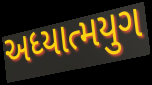
અધ્યાત્મયુગ